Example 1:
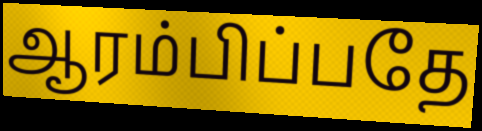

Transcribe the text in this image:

ஆரம்பிப்பதே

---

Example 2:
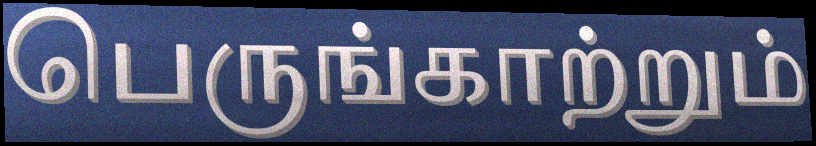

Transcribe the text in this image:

பெருங்காற்றும்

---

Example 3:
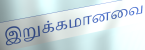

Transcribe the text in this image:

இறுக்கமானவை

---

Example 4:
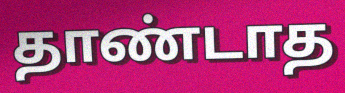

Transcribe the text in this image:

தாண்டாத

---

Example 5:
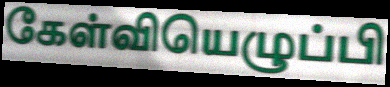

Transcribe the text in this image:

கேள்வியெழுப்பி